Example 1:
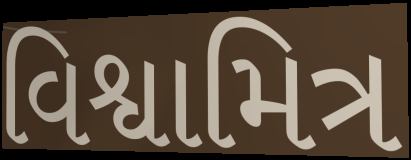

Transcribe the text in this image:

વિશ્વામિત્ર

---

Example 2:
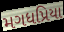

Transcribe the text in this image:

મગધપ્રિયા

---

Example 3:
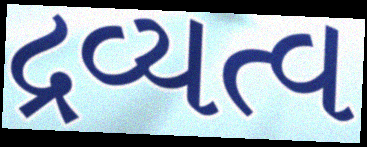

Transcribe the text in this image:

દ્રવ્યત્વ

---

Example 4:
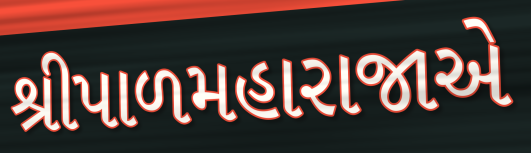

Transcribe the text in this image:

શ્રીપાળમહારાજાએ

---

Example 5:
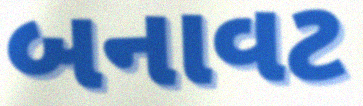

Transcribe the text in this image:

બનાવટ